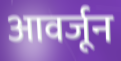
आवर्जून